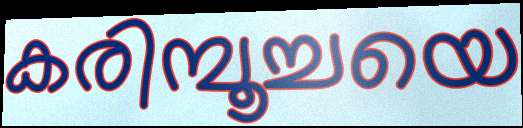
കരിമ്പൂച്ചയെ